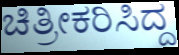
ಚಿತ್ರೀಕರಿಸಿದ್ದ